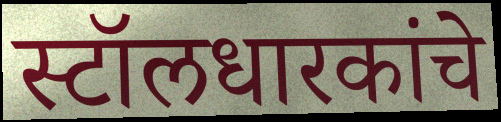
स्टॉलधारकांचे